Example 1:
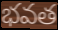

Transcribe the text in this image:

భవత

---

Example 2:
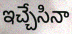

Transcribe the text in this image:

ఇచ్చేసినా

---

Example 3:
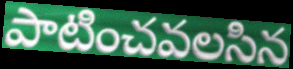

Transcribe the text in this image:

పాటించవలసిన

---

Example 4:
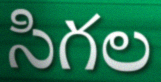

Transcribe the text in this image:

సిగల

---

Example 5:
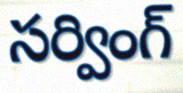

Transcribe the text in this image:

సర్వింగ్